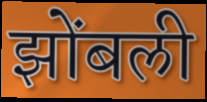
झोंबली